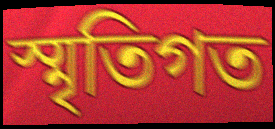
স্মৃতিগত